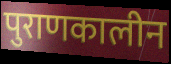
पुराणकालीन